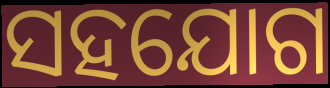
ସହଯୋଗ